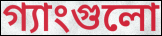
গ্যাংগুলো